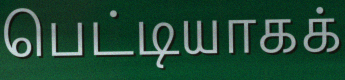
பெட்டியாகக்